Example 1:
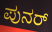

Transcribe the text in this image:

ಪುನರ್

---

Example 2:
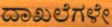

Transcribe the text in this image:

ದಾಖಲೆಗಳೇ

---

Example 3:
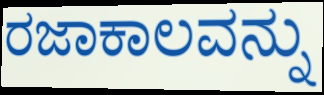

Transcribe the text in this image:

ರಜಾಕಾಲವನ್ನು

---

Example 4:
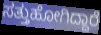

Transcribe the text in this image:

ಸತ್ತುಹೋಗಿದ್ದಾರೆ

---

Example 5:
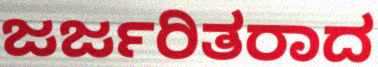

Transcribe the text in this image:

ಜರ್ಜರಿತರಾದ